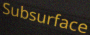
Subsurface